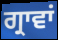
ਗ੍ਰਾਵਾਂ